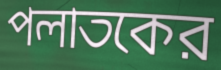
পলাতকের